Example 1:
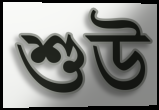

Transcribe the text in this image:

শুউ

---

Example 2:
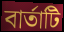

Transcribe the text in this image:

বার্তাটি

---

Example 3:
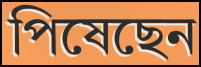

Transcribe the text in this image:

পিষেছেন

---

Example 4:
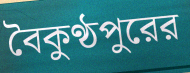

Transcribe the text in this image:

বৈকুণ্ঠপুরের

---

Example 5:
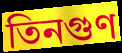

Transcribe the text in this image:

তিনগুণ